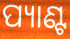
ପ୍ୟାଣ୍ଟ